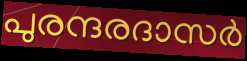
പുരന്ദരദാസർ